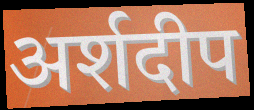
अर्शदीप